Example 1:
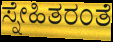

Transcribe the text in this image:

ಸ್ನೇಹಿತರಂತೆ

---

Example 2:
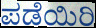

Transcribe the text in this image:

ಪಡೆಯಿರಿ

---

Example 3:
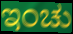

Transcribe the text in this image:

ಇಂಚು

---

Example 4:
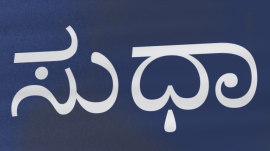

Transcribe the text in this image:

ಸುಧಾ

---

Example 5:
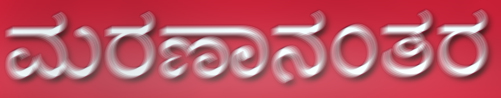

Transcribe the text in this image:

ಮರಣಾನಂತರ